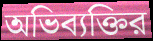
অভিব্যক্তির